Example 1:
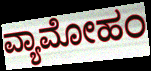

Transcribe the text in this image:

ವ್ಯಾಮೋಹಂ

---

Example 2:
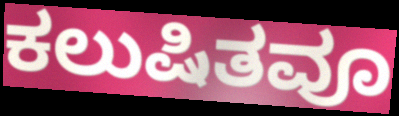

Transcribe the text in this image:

ಕಲುಷಿತವೂ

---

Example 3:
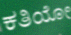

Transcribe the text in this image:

ಕತಿಯೋ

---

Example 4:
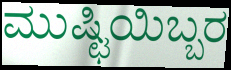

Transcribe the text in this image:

ಮುಷ್ಟಿಯಿಬ್ಬರ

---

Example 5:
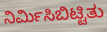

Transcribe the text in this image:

ನಿರ್ಮಿಸಿಬಿಟ್ಟಿತು